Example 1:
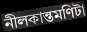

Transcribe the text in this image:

নীলকান্তমণিটা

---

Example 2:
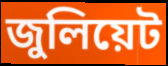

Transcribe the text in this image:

জুলিয়েট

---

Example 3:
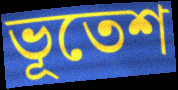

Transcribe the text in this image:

ভূতেশ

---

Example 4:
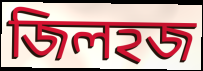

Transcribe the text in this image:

জিলহজ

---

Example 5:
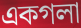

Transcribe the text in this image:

একগলা